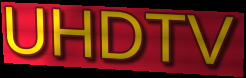
UHDTV